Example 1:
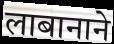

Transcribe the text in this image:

लाबानाने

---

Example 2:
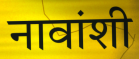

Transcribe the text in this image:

नावांशी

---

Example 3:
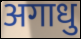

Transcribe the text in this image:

अगाधु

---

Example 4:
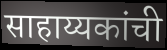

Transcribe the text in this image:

साहाय्यकांची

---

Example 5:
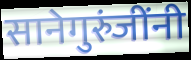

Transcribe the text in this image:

सानेगुरुंजींनी